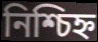
নিশ্চিহ্ন